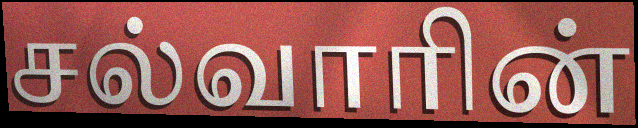
சல்வாரின்